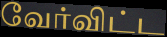
வேர்விட்ட